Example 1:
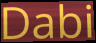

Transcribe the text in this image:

Dabi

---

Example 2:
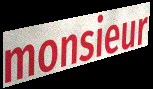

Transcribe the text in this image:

monsieur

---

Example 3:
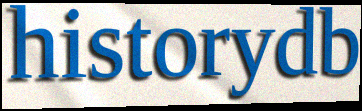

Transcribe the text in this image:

historydb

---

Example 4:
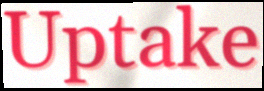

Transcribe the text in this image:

Uptake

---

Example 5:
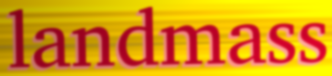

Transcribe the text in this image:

landmass